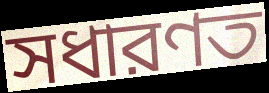
সধারণত